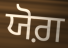
ਯੋਗ਼